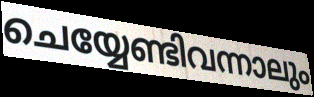
ചെയ്യേണ്ടിവന്നാലും